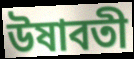
উষাবতী